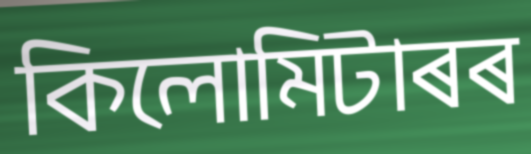
কিলোমিটাৰৰ